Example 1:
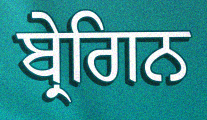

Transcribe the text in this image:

ਬ੍ਰੇਗਿਨ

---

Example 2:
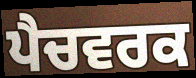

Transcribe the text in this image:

ਪੈਚਵਰਕ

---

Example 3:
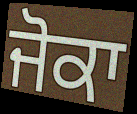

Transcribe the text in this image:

ਜੋਕਾ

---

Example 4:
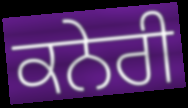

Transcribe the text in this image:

ਕਨੇਰੀ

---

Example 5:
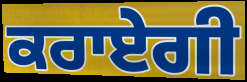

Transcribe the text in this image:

ਕਰਾਏਗੀ